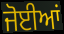
ਜੋਈਆਂ